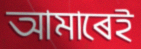
আমাৰেই